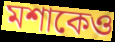
মশাকেও